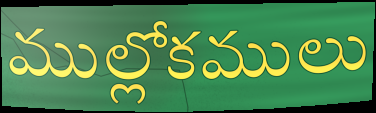
ముల్లోకములు